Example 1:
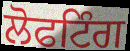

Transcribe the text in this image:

ਲੋਫਟਿੰਗ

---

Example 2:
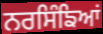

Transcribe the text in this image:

ਨਰਸਿੰਙਿਆਂ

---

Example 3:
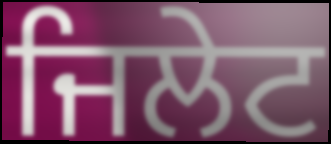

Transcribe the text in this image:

ਜਿਲੇਟ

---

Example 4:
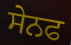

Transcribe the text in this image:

ਸੇਨਫ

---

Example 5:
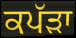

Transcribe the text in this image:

ਕਪੱੜਾ